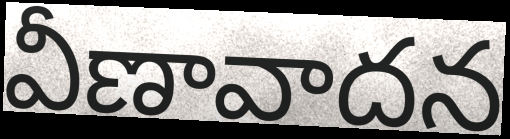
వీణావాదన